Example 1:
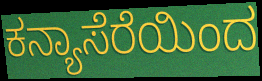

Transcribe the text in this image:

ಕನ್ಯಾಸೆರೆಯಿಂದ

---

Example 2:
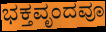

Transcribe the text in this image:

ಭಕ್ತವೃಂದವೂ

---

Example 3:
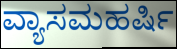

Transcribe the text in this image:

ವ್ಯಾಸಮಹರ್ಷಿ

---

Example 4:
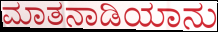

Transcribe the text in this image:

ಮಾತನಾಡಿಯಾನು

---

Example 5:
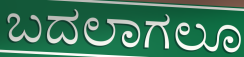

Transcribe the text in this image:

ಬದಲಾಗಲೂ